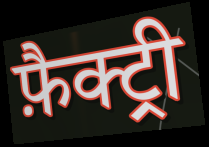
फ़ैक्ट्री